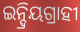
ଇନ୍ଦ୍ରିୟଗ୍ରାହୀ